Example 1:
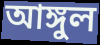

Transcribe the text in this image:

আঙ্গুল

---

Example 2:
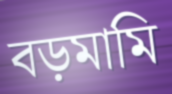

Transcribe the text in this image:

বড়মামি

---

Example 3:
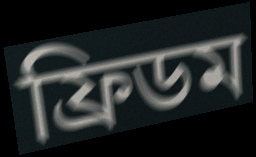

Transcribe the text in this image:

ফ্রিডম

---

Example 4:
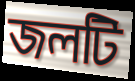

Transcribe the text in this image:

জলটি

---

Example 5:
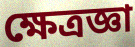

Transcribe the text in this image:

ক্ষেত্রজ্ঞা